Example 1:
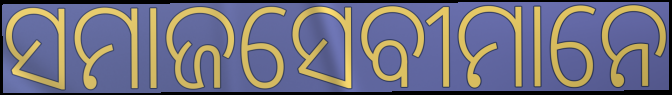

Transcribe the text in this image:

ସମାଜସେବୀମାନେ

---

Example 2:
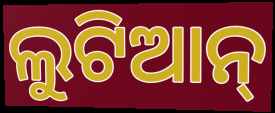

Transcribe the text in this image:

ଲୁଟିଆନ୍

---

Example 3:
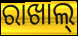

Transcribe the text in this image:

ରାଖାଲ୍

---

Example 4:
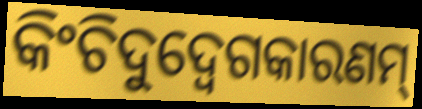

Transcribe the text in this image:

କିଂଚିଦୁଦ୍ବେଗକାରଣମ୍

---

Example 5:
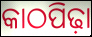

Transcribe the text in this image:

କାଠପିଢ଼ା